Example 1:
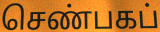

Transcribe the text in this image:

செண்பகப்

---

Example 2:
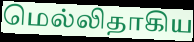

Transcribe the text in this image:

மெல்லிதாகிய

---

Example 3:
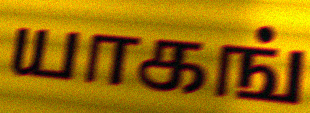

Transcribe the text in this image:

யாகங்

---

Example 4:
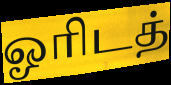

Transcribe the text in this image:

ஓரிடத்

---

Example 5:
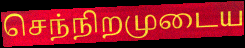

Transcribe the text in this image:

செந்நிறமுடைய